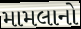
મામલાનો